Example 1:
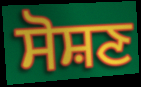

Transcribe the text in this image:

ਸੋਸ਼ਣ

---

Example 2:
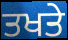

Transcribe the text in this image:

ਤਖਤੇ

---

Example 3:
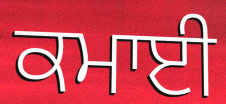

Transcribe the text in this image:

ਕਮਾਈ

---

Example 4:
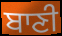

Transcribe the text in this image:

ਬਾਣੀ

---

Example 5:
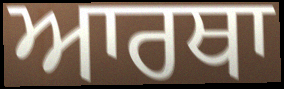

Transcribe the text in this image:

ਆਰਥਾ